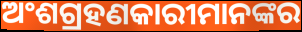
ଅଂଶଗ୍ରହଣକାରୀମାନଙ୍କର